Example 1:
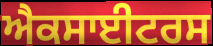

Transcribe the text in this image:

ਐਕਸਾਈਟਰਸ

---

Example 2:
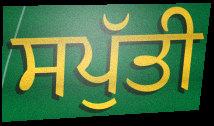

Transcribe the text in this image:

ਸਪੁੱਤੀ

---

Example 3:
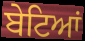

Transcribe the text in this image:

ਬੇਟਿਆਂ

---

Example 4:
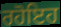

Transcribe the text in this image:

ਰਹੋਇਹ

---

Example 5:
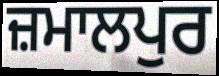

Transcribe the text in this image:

ਜ਼ਮਾਲਪੁਰ